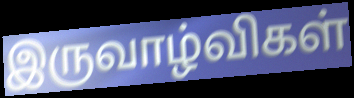
இருவாழ்விகள்